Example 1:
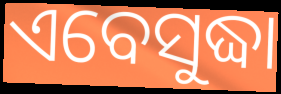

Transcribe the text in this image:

ଏବେସୁଦ୍ଧା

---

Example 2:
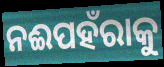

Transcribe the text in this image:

ନଈପହଁରାକୁ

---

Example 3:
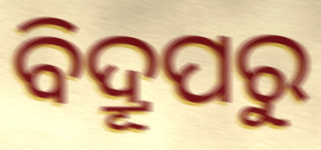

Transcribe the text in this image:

ବିଦ୍ରୂପରୁ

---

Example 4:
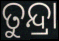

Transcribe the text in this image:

ତୁନ୍ଦ୍ରା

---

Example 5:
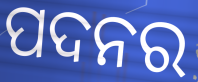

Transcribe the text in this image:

ପଦନର